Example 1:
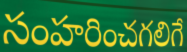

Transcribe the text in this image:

సంహరించగలిగే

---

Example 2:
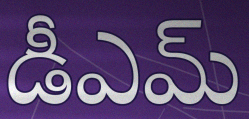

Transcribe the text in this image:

డీఎమ్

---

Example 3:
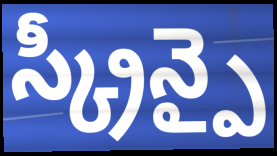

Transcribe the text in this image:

స్క్రీన్పై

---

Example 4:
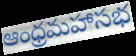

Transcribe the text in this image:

ఆంధ్రమహాసభ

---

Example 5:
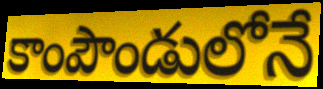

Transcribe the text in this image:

కాంపౌండులోనే